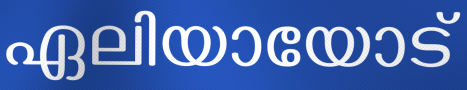
ഏലിയായോട്